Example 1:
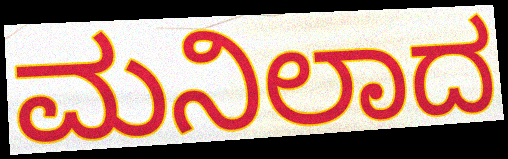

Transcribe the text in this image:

ಮನಿಲಾದ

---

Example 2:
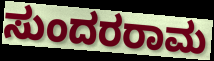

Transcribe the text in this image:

ಸುಂದರರಾಮ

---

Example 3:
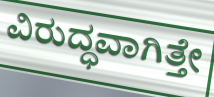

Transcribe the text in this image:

ವಿರುದ್ಧವಾಗಿತ್ತೇ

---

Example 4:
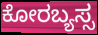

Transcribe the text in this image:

ಕೋರಬ್ಯಸ್ಸ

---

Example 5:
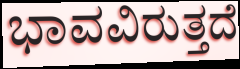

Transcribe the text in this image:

ಭಾವವಿರುತ್ತದೆ